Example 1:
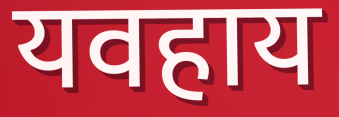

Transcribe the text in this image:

यवहाय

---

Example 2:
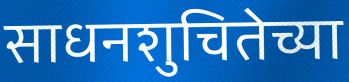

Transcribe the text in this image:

साधनशुचितेच्या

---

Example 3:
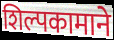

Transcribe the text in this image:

शिल्पकामाने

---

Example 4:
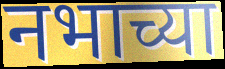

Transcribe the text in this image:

नभाच्या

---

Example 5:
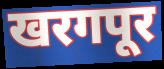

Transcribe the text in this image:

खरगपूर